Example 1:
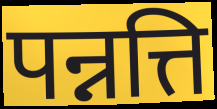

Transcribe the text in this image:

पन्नत्ति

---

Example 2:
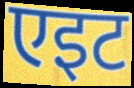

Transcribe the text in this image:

एइट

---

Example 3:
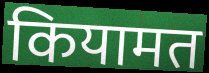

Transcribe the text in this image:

कियामत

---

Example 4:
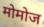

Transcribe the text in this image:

मोमोज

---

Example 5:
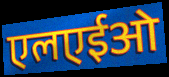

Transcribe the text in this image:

एलएईओ